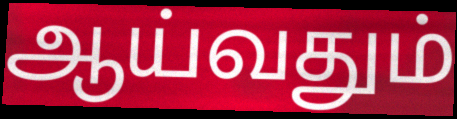
ஆய்வதும்